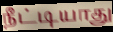
நீட்டியாது